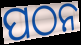
ପଠନ